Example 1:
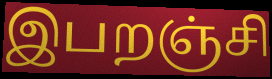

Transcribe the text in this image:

இபறஞ்சி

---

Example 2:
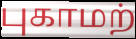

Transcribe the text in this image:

புகாமற்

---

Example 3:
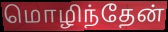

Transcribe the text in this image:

மொழிந்தேன்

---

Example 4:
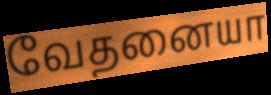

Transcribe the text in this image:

வேதனையா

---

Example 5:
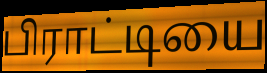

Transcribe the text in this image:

பிராட்டியை